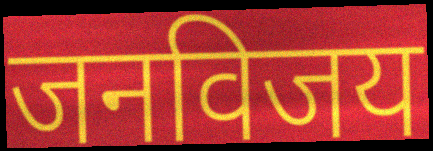
जनविजय